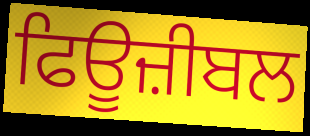
ਫਿਊਜ਼ੀਬਲ